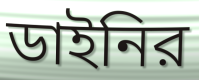
ডাইনির